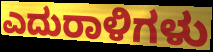
ಎದುರಾಳಿಗಳು